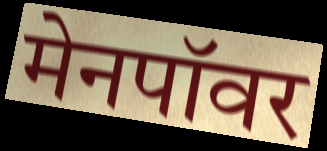
मेनपॉवर